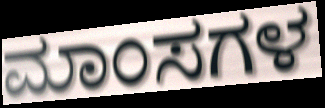
ಮಾಂಸಗಳ